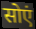
सोएं